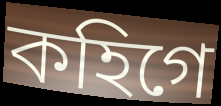
কহিগে